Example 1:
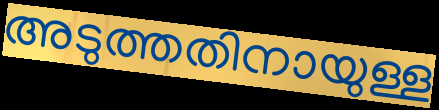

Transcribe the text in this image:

അടുത്തതിനായുള്ള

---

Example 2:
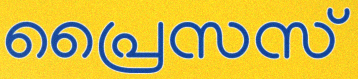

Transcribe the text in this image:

പ്രൈസസ്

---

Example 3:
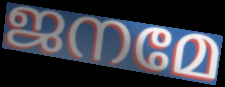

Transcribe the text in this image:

ജനമേ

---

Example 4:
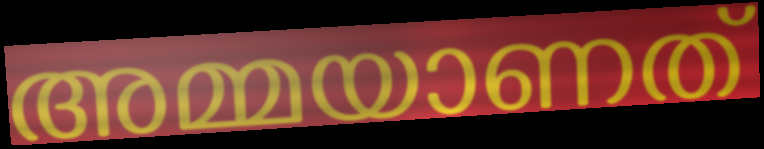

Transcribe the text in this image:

അമ്മയാണത്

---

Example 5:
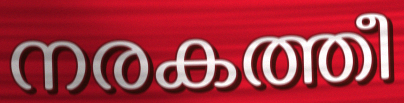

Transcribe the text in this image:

നരകത്തീ